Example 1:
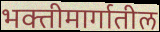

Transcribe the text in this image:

भक्तीमार्गातील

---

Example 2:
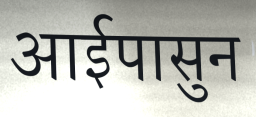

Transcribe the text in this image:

आईपासुन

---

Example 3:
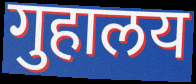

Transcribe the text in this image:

गुहालय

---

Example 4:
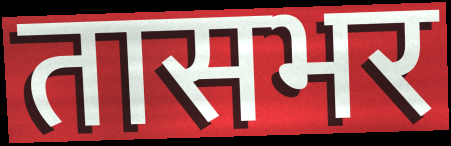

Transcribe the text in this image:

तासभर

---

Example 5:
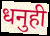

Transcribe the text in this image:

धनुही